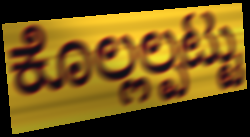
ಕೊಲ್ಲಲ್ಪಟ್ಟು